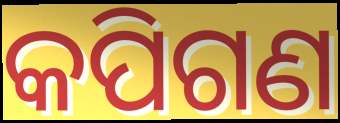
କପିଗଣ